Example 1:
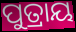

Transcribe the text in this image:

ପୁତ୍ରାୟ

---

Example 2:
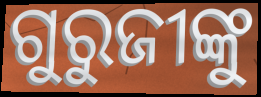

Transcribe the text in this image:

ଗୁରୁଜୀଙ୍କୁ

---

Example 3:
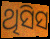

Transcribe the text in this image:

ଥିସିସ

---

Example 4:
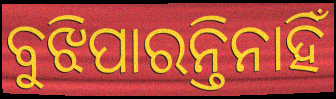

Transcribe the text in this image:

ବୁଝିପାରନ୍ତିନାହିଁ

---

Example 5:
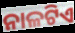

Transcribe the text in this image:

ନାଳଟିଏ